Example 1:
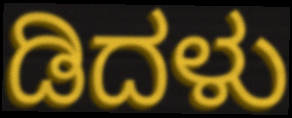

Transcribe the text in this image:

ಡಿದಳು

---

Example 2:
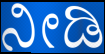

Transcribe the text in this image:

ನೀಡಿ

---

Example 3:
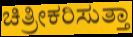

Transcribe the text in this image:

ಚಿತ್ರೀಕರಿಸುತ್ತಾ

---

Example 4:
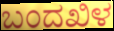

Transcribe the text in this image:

ಬಂದಖಿಳ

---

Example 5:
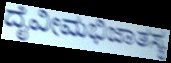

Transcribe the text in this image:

ದೈವೀಮಭಿಜಾತಸ್ಯ